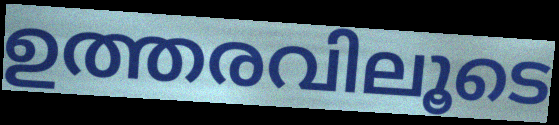
ഉത്തരവിലൂടെ